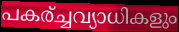
പകര്ച്ചവ്യാധികളും